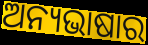
ଅନ୍ୟଭାଷାର